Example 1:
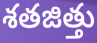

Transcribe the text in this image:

శతజిత్తు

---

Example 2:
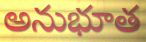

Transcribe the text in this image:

అనుభూత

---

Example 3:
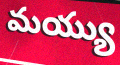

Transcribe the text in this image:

మయ్యు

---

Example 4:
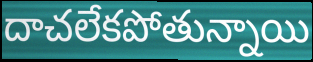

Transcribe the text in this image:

దాచలేకపోతున్నాయి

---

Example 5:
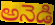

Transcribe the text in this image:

అనెడి